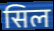
सिल